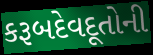
કરૂબદેવદૂતોની